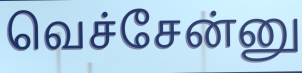
வெச்சேன்னு